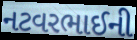
નટવરભાઈની